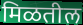
मिळतील